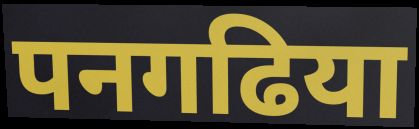
पनगढिया